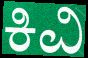
ಕಿವಿ